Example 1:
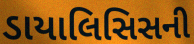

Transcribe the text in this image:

ડાયાલિસિસની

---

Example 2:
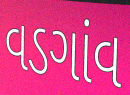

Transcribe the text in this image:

વડગાંવ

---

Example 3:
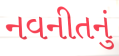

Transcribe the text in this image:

નવનીતનું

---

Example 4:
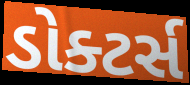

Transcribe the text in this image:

ડોક્ટર્સ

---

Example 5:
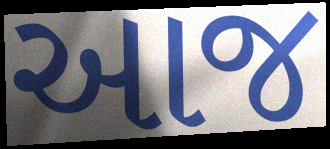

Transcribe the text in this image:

આજ